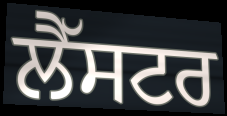
ਲੈੱਸਟਰ